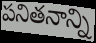
పనితనాన్ని